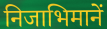
निजाभिमानें